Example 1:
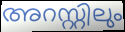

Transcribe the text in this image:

അറസ്റ്റിലും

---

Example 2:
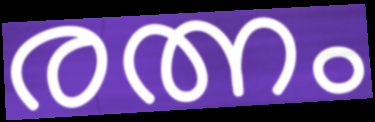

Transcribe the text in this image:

രത്നം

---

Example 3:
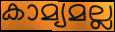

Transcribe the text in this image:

കാമ്യമല്ല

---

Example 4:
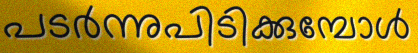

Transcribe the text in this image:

പടർന്നുപിടിക്കുമ്പോൾ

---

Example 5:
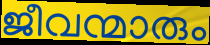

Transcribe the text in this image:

ജീവന്മാരും